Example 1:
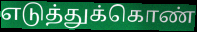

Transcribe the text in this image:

எடுத்துக்கொண்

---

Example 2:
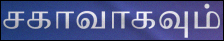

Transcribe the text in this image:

சகாவாகவும்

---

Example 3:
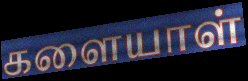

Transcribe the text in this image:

களையாள்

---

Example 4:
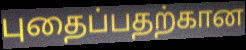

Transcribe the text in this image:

புதைப்பதற்கான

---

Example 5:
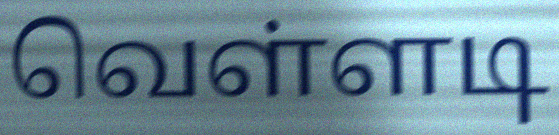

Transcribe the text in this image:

வெள்ளடி